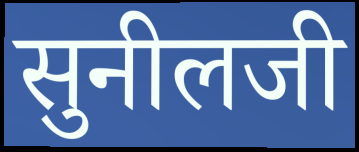
सुनीलजी